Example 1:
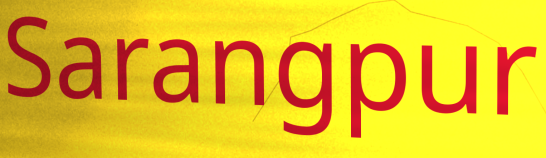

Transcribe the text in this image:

Sarangpur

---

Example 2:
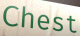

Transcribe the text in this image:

Chest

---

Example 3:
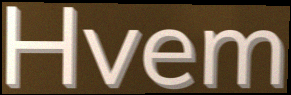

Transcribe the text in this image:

Hvem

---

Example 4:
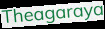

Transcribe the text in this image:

Theagaraya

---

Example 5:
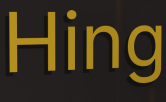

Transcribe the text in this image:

Hing